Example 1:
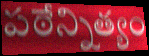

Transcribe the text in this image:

పఠేన్నిత్యం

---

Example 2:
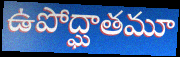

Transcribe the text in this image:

ఉపోద్ఘాతమూ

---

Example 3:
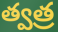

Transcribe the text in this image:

త్వత్ర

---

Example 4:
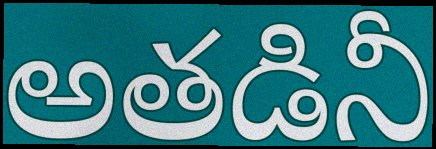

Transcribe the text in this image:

అతడినీ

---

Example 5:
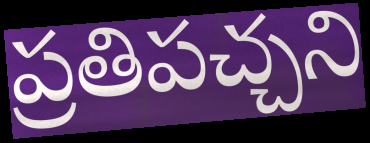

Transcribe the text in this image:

ప్రతిపచ్చని